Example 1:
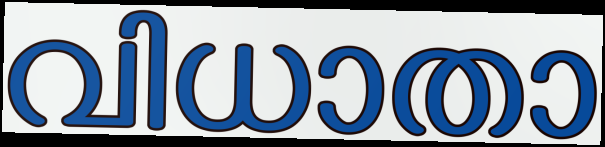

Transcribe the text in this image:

വിധാതാ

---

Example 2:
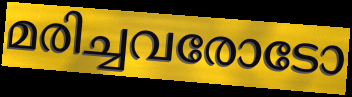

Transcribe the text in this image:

മരിച്ചവരോടോ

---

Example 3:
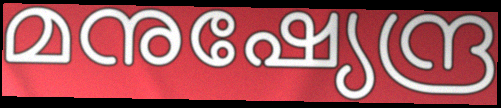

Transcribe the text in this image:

മനുഷ്യേന്ദ്ര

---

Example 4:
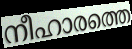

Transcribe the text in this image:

നീഹാരത്തെ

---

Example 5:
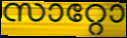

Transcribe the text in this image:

സാറ്റോ